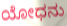
ಯೋಧನು